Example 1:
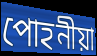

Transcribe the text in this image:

পোহনীয়া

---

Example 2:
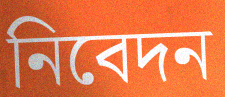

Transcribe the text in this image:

নিবেদন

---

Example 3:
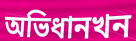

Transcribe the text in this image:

অভিধানখন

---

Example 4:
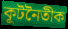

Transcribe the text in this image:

কূটনৈতীক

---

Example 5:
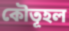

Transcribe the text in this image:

কৌতূহল